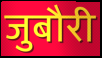
जुबौरी